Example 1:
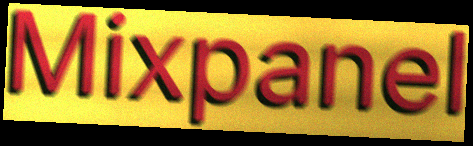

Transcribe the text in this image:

Mixpanel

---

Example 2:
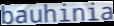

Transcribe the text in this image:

bauhinia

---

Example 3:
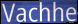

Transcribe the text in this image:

Vachhe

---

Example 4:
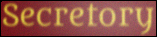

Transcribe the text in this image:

Secretory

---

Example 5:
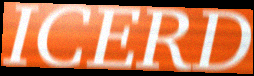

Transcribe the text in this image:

ICERD